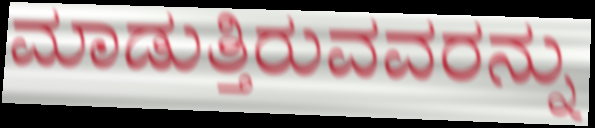
ಮಾಡುತ್ತಿರುವವರನ್ನು